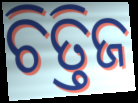
ଚିତ୍ତିଜ